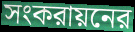
সংকরায়নের